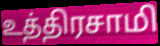
உத்திரசாமி